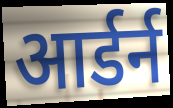
आर्डर्न